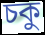
চকু